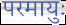
परमायुः